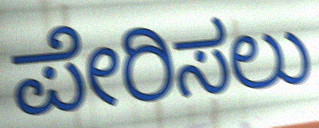
ಪೇರಿಸಲು